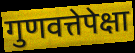
गुणवत्तेपेक्षा